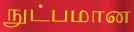
நுட்பமான